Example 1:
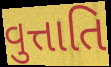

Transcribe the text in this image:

વુત્તાતિ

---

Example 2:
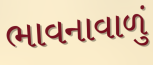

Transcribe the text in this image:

ભાવનાવાળું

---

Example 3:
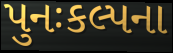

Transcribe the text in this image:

પુનઃકલ્પના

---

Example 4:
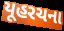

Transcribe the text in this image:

યૂહરચના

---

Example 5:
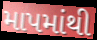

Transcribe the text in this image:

માપમાંથી